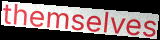
themselves